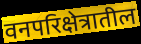
वनपरिक्षेत्रातील